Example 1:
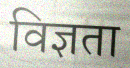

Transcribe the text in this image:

विज्ञता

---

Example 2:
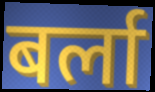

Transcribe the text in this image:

बर्ला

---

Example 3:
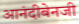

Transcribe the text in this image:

आनंदीबेनजी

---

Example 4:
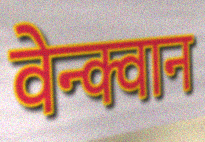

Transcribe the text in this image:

वेन्क्वान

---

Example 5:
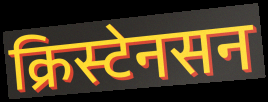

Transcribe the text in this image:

क्रिस्टेनसन